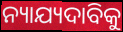
ନ୍ୟାଯ୍ୟଦାବିକୁ